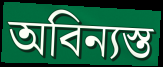
অবিন্যস্ত